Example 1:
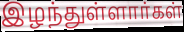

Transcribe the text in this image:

இழந்துள்ளார்கள்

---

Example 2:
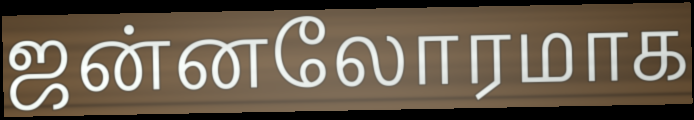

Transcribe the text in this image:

ஜன்னலோரமாக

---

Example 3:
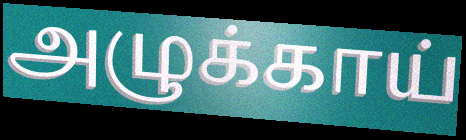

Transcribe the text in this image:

அழுக்காய்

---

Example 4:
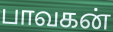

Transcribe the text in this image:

பாவகன்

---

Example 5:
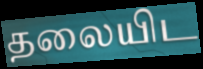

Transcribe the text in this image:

தலையிட